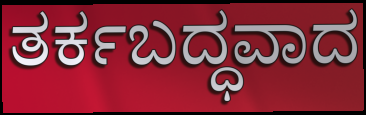
ತರ್ಕಬದ್ಧವಾದ